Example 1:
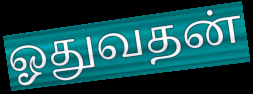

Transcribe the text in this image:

ஓதுவதன்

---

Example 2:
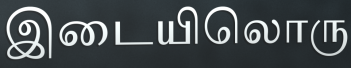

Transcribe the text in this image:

இடையிலொரு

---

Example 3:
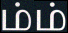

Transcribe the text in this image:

ம்ம்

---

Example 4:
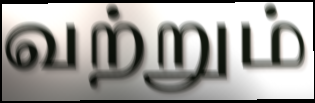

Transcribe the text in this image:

வற்றும்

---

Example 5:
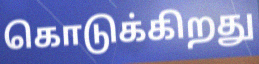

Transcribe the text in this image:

கொடுக்கிறது